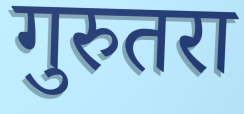
गुरुतरा